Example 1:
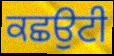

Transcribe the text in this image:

ਕਛਉਟੀ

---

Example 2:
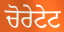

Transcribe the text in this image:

ਚੋਰੇਟੇਟ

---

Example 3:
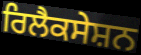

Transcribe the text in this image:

ਰਿਲੈਕਸੇਸ਼ਨ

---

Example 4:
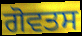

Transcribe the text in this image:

ਗੋਵਤਸ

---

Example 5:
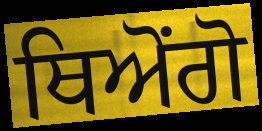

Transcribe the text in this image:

ਥਿਅੋਂਗੋ